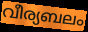
വീര്യബലം